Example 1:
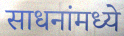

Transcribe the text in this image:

साधनांमध्ये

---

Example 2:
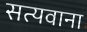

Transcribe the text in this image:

सत्यवाना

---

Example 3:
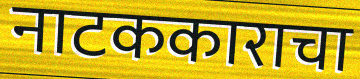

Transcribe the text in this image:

नाटककाराचा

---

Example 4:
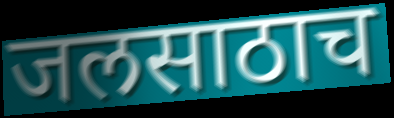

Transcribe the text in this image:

जलसाठाच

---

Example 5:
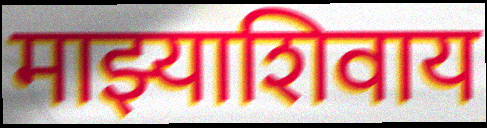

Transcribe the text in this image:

माझ्याशिवाय